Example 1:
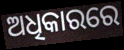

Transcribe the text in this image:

ଅଧିକାରରେ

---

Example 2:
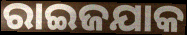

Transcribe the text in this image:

ରାଇଜଯାକ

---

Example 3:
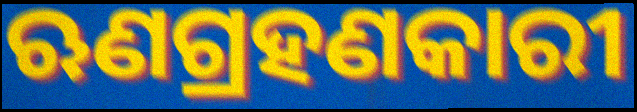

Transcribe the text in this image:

ଋଣଗ୍ରହଣକାରୀ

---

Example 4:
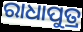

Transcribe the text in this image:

ରାଧାପୁତ୍ର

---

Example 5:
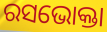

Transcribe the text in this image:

ରସଭୋକ୍ତା